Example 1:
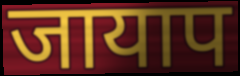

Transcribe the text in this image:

जायाप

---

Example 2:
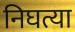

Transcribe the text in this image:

निघत्या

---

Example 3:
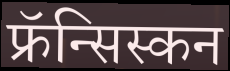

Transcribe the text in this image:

फ्रॅन्सिस्कन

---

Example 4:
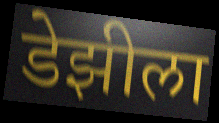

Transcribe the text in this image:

डेझीला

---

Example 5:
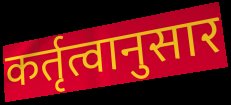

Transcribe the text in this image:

कर्तृत्वानुसार